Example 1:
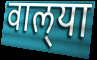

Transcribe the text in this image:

वाल्या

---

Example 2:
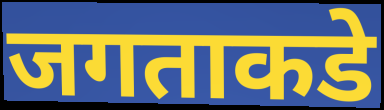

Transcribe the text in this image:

जगताकडे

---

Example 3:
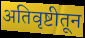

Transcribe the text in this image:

अतिवृष्टीतून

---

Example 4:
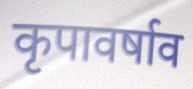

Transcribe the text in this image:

कृपावर्षाव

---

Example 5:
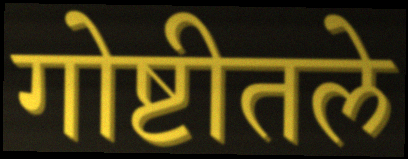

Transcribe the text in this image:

गोष्टीतले